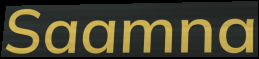
Saamna